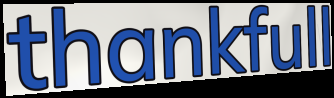
thankfull